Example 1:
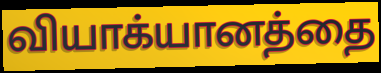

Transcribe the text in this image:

வியாக்யானத்தை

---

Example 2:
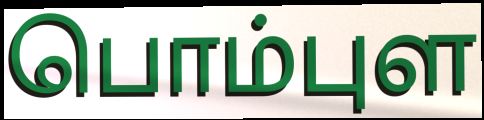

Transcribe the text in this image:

பொம்புள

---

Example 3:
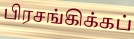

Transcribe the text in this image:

பிரசங்கிக்கப்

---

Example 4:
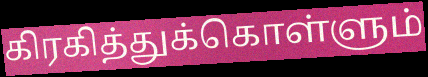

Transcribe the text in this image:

கிரகித்துக்கொள்ளும்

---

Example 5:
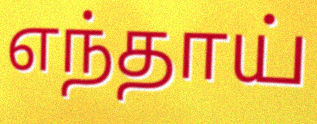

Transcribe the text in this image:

எந்தாய்